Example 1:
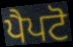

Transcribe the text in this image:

ਪੈਪਟੋ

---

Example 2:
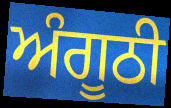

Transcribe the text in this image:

ਅੰਗੂਠੀ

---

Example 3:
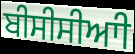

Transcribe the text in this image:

ਬੀਸੀਸੀਆੀ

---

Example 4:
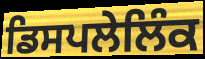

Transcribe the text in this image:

ਡਿਸਪਲੇਲਿੰਕ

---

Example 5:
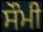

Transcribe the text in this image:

ਸੌਮੀ